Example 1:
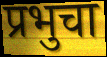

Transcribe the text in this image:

प्रभुचा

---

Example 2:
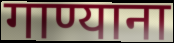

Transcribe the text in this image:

गाण्याना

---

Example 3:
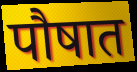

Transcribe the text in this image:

पौषात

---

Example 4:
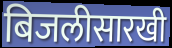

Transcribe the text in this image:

बिजलीसारखी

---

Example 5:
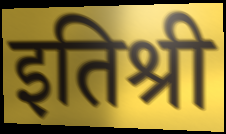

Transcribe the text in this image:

इतिश्री